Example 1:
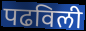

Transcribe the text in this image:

पढविली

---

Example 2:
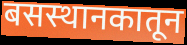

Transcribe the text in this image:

बसस्थानकातून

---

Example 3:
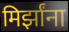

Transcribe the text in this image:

मिर्झांना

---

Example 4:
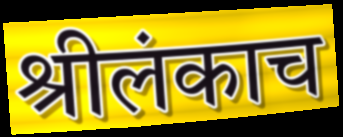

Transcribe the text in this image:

श्रीलंकाच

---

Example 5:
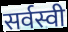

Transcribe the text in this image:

सर्वस्वी